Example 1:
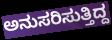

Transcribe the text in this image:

ಅನುಸರಿಸುತ್ತಿದ್ದ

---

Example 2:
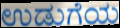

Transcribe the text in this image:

ಉಡುಗೆಯ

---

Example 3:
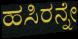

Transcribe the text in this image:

ಹಸಿರನ್ನೇ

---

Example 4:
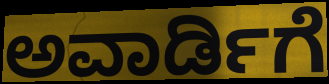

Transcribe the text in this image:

ಅವಾರ್ಡಿಗೆ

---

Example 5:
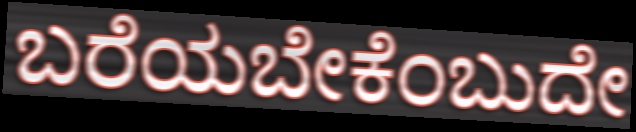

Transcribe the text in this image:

ಬರೆಯಬೇಕೆಂಬುದೇ